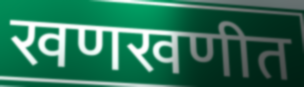
खणखणीत